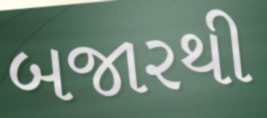
બજારથી